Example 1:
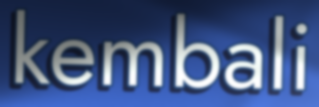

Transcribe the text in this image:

kembali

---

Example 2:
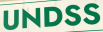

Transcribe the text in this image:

UNDSS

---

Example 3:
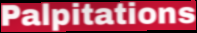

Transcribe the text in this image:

Palpitations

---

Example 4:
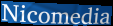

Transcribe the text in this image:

Nicomedia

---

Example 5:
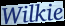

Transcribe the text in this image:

Wilkie